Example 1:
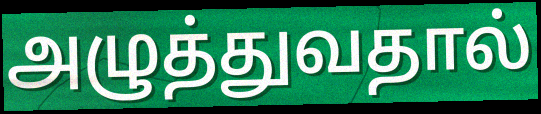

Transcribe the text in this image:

அழுத்துவதால்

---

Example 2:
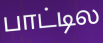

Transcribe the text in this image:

பாட்டில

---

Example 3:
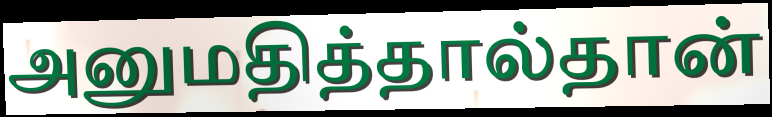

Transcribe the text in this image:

அனுமதித்தால்தான்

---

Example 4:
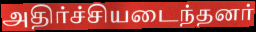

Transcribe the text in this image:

அதிர்ச்சியடைந்தனர்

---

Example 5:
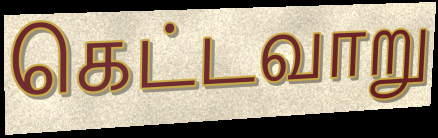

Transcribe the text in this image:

கெட்டவாறு